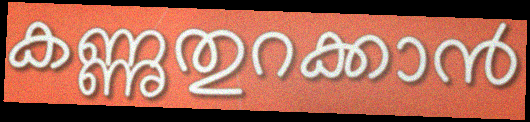
കണ്ണുതുറക്കാൻ